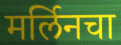
मर्लिनचा